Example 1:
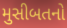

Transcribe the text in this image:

મુસીબતનો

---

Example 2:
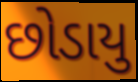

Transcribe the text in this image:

છોડાયુ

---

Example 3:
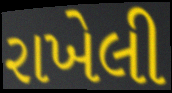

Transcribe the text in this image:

રાખેલી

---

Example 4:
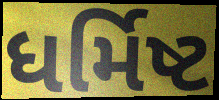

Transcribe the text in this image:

ધર્મિષ્ટ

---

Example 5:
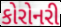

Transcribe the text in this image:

કોરોનરી